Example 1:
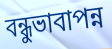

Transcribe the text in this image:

বন্ধুভাবাপন্ন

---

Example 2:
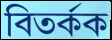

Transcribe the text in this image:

বিতৰ্কক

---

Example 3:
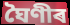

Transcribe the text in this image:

ঘৈণীৰ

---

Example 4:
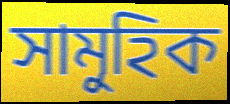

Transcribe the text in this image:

সামুহিক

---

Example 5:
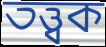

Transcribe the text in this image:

তত্ত্বক